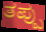
ತಪ್ಪು